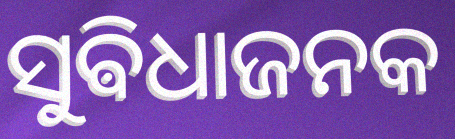
ସୁଵିଧାଜନକ